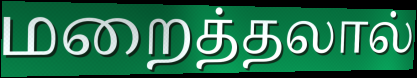
மறைத்தலால்